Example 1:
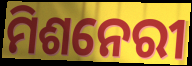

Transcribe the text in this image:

ମିଶନେରୀ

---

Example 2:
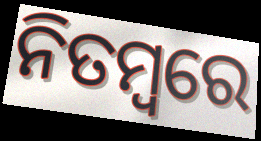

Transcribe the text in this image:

ନିତମ୍ବରେ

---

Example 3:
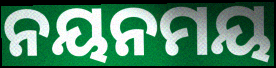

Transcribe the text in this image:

ନୟନମୟ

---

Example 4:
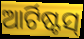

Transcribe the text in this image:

ଆର୍ଟିଷ୍ଟସ୍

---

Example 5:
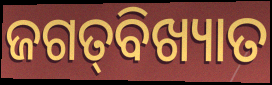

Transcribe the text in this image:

ଜଗତ୍‌ବିଖ୍ୟାତ